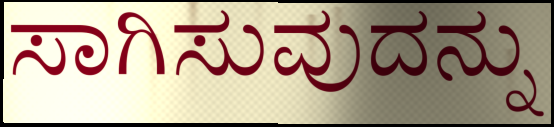
ಸಾಗಿಸುವುದನ್ನು